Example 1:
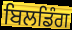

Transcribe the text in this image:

ਬਿਲਡਿੰਗ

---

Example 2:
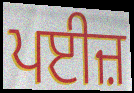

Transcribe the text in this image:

ਪਈਜ਼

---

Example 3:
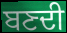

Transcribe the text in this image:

ਬਣਦੀ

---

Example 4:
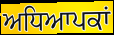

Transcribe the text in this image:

ਅਧਿਆਪਕਾਂ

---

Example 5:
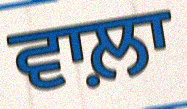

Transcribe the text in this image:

ਵਾਲ਼ਾ